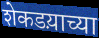
शेकडय़ाच्या